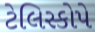
ટેલિસ્કોપે